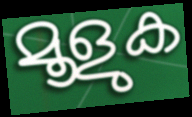
മൂളുക